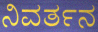
ನಿವರ್ತನ